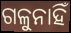
ଗଳୁନାହିଁ